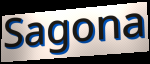
Sagona